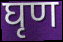
घृण